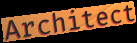
Architect